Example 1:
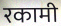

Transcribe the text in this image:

रकामी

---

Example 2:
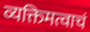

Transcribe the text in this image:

व्यक्तिमत्वाचं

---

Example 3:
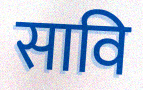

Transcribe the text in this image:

सावि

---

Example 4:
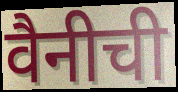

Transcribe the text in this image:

वैनीची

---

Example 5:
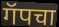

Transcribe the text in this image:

गॅपचा